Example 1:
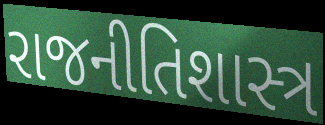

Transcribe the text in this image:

રાજનીતિશાસ્ત્ર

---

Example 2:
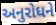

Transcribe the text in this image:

અનુરોધને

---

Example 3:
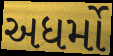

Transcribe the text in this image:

અધર્મો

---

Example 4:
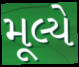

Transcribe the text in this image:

મૂલ્યે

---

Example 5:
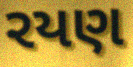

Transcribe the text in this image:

રયણ